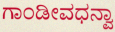
ಗಾಂಡೀವಧನ್ವಾ